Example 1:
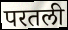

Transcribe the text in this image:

परतली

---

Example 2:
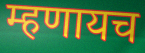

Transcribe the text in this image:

म्हणायच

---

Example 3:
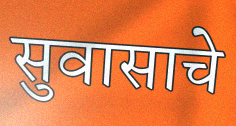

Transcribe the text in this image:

सुवासाचे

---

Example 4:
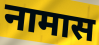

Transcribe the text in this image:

नामास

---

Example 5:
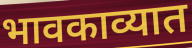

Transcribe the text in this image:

भावकाव्यात